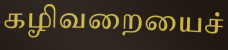
கழிவறையைச்